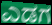
ಎಡಗ